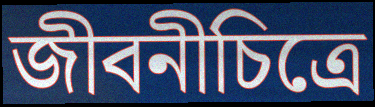
জীবনীচিত্রে